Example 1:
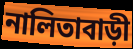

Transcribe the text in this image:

নালিতাবাড়ী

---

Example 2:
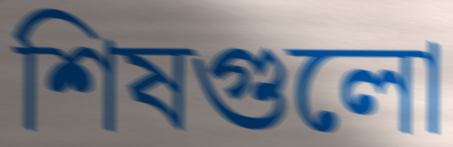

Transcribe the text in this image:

শিষগুলো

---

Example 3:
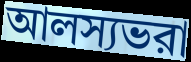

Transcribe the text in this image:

আলস্যভরা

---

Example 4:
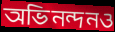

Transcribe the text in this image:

অভিনন্দনও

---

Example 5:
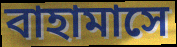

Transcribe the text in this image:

বাহামাসে